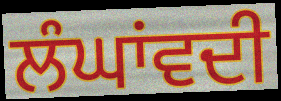
ਲੰਘਾਂਵਦੀ